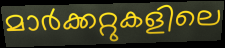
മാർക്കറ്റുകളിലെ